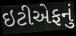
ઇટીએફનું